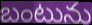
బంటును